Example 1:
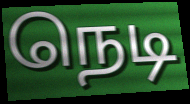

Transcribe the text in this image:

நெடி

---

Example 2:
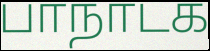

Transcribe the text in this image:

பாநாடக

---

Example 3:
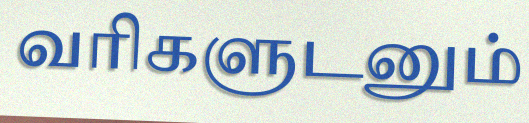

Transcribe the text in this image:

வரிகளுடனும்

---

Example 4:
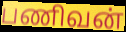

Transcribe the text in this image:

பணிவன்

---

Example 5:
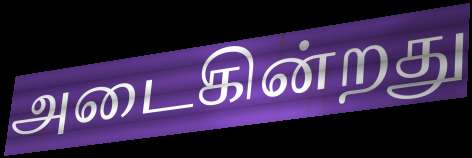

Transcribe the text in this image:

அடைகின்றது